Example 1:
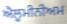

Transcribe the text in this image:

ਐਲੂਮੀਨੀਅਮ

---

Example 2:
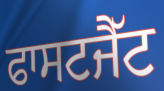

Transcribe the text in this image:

ਫਾਸਟਜੈੱਟ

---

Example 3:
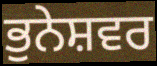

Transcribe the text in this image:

ਭੁਨੇਸ਼ਵਰ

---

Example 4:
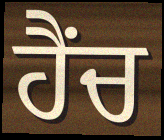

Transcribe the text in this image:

ਹੈਂਚ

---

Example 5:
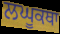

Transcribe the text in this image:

ਲਘੂਕਥਾ